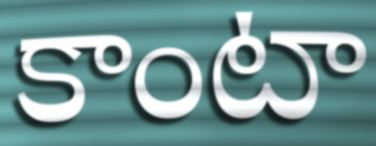
కాంటా